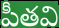
పీతవి